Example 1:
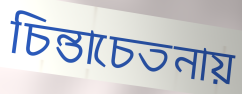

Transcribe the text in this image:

চিন্তাচেতনায়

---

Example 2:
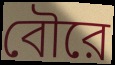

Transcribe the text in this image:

বৌরে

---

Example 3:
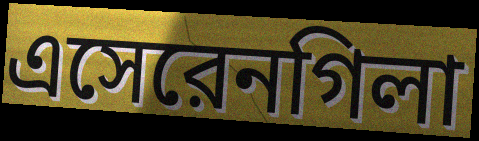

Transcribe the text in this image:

এসেরেনগিলা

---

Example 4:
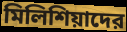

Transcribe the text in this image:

মিলিশিয়াদের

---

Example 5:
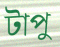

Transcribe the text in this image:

টাপু